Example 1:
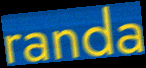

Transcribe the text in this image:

randa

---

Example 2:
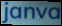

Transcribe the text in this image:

janva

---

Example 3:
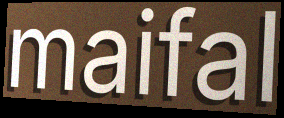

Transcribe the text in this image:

maifal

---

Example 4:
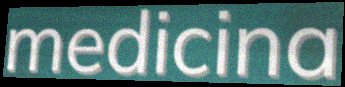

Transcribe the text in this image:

medicina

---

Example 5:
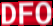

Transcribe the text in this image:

DFO